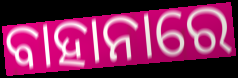
ବାହାନାରେ